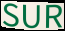
SUR